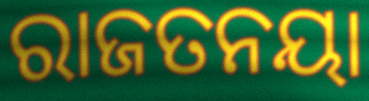
ରାଜତନୟା